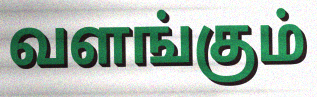
வளங்கும்